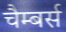
चैम्‍बर्स